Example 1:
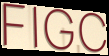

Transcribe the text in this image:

FIGC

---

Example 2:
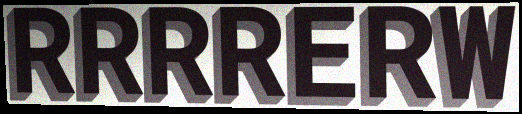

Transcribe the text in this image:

RRRRERW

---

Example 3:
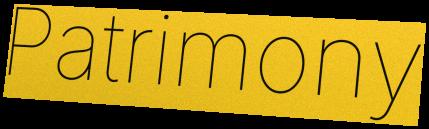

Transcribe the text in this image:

Patrimony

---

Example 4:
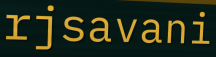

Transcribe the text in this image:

rjsavani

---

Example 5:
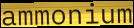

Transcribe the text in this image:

ammonium